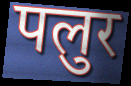
पलुर